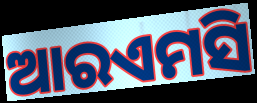
ଆରଏମସି